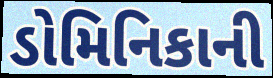
ડોમિનિકાની